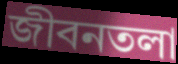
জীবনতলা